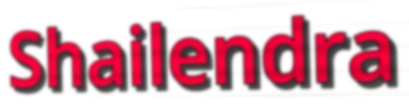
Shailendra